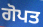
ਗੋਪਤ